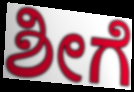
ಶೀಗೆ